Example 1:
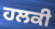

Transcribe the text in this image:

ਹਲਕੀ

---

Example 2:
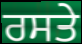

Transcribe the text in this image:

ਰਸਤੇ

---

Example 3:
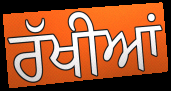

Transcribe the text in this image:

ਰੱਖੀਆਂ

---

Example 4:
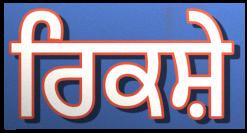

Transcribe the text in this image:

ਰਿਕਸ਼ੇ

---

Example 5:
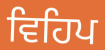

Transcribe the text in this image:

ਵਿਹਿਪ